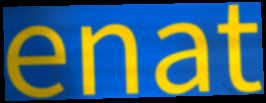
enat